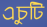
এচুটি